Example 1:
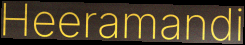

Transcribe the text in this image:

Heeramandi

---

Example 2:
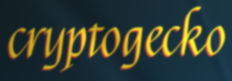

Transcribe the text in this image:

cryptogecko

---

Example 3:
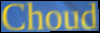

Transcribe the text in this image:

Choud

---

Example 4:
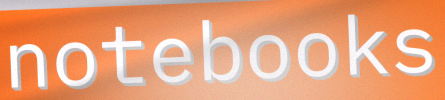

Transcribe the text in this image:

notebooks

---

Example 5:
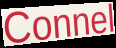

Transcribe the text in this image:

Connel